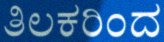
ತಿಲಕರಿಂದ